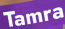
Tamra